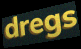
dregs